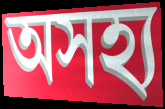
অসহ্য